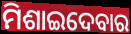
ମିଶାଇଦେବାର